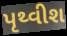
પૃથ્વીશ